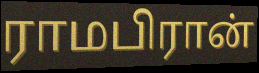
ராமபிரான்